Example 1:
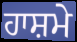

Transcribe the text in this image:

ਹਾਸ਼ਮੇ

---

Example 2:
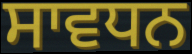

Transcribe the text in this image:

ਸਾਵਧਨ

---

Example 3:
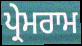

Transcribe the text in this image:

ਪ੍ਰੇਮਰਾਮ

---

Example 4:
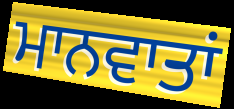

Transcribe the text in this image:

ਮਾਨਵਾਤਾਂ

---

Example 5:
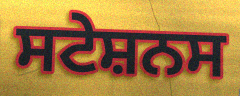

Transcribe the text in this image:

ਸਟੇਸ਼ਨਸ